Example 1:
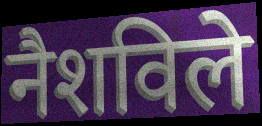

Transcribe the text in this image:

नैशविले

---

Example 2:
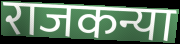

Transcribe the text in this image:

राजकन्या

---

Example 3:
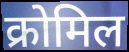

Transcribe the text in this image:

क्रोमिल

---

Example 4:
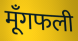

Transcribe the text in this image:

मूँगफली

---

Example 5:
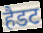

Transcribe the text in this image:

हैडट